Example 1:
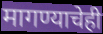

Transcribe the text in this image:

मागण्याचेही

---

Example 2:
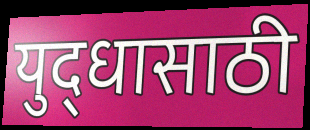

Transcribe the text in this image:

युद्धासाठी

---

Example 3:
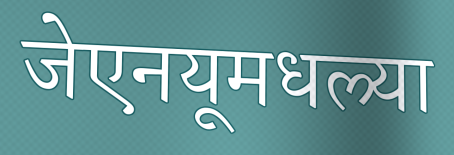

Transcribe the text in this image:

जेएनयूमधल्या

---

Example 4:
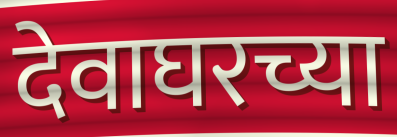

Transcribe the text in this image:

देवाघरच्या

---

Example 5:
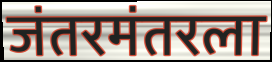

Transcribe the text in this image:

जंतरमंतरला